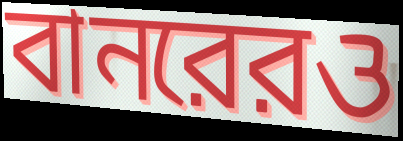
বানরেরও